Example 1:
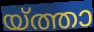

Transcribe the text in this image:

യ്ത്താ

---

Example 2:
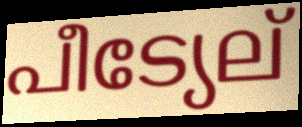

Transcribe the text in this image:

പീട്യേല്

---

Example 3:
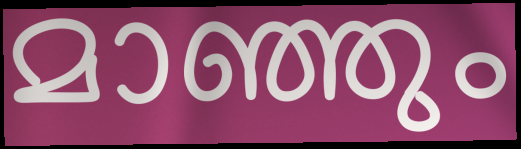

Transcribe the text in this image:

മാഞ്ഞും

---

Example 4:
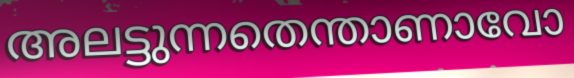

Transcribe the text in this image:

അലട്ടുന്നതെന്താണാവോ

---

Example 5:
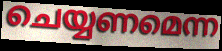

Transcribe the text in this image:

ചെയ്യണമെന്ന